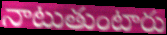
నాటుతుంటారు